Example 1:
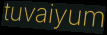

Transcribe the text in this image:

tuvaiyum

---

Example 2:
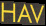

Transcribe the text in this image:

HAV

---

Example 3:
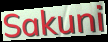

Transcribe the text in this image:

Sakuni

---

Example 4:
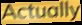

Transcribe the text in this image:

Actually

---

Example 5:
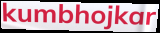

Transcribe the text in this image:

kumbhojkar